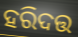
ହରିଦତ୍ତ